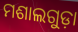
ମଶାଲଗୁଡ଼ା